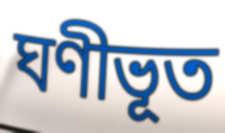
ঘণীভূত